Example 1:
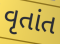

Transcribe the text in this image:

વૃતાંત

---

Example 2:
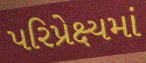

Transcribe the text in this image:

પરિપ્રેક્ષ્યમાં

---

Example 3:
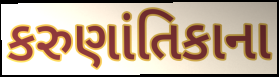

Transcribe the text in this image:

કરુણાંતિકાના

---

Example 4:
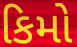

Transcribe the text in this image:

કિમો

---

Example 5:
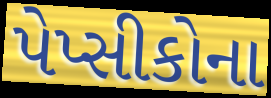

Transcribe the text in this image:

પેપ્સીકોના